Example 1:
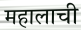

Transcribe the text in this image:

महालाची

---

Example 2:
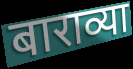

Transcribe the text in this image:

बाराव्या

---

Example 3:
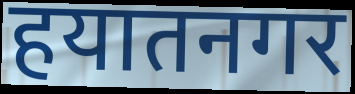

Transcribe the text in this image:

हयातनगर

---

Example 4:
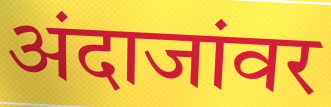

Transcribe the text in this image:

अंदाजांवर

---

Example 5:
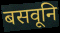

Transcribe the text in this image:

बसवूनि